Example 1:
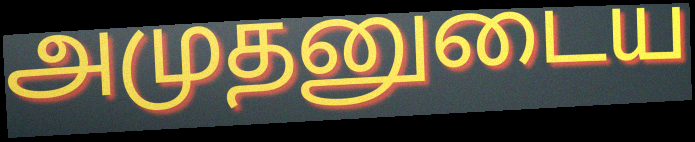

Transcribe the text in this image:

அமுதனுடைய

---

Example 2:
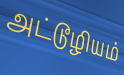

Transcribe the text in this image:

அட்டூழியம்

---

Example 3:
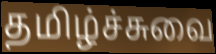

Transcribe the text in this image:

தமிழ்ச்சுவை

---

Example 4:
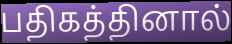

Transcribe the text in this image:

பதிகத்தினால்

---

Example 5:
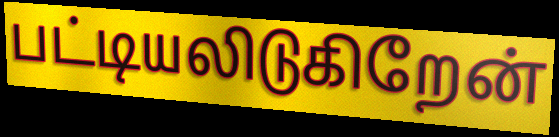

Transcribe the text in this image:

பட்டியலிடுகிறேன்